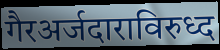
गैरअर्जदाराविरुध्द